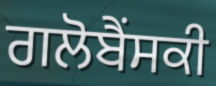
ਗਲੋਬੈਂਸਕੀ